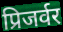
प्रिजर्वर